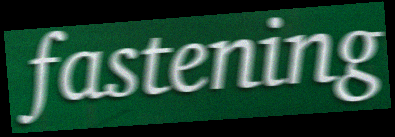
fastening